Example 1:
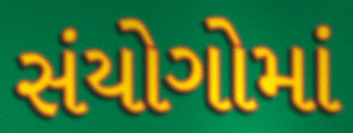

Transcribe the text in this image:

સંયોગોમાં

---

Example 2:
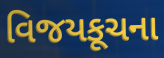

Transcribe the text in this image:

વિજયકૂચના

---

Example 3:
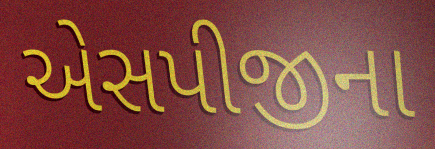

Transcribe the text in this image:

એસપીજીના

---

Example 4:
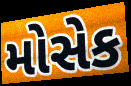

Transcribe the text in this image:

મોસેક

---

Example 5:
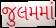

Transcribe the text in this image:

જુલમમાં